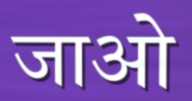
जाओ